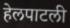
हेलपाटली